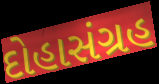
દોહાસંગ્રહ